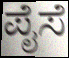
ಪೈಸೆ